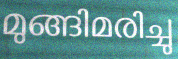
മുങ്ങിമരിച്ചു